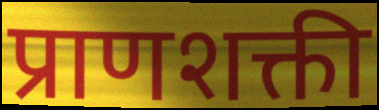
प्राणशक्ती